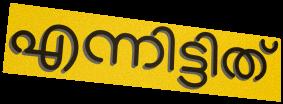
എന്നിട്ടിത്